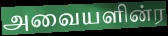
அவையளின்ர